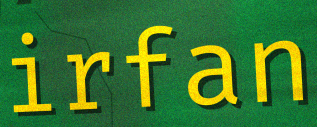
irfan